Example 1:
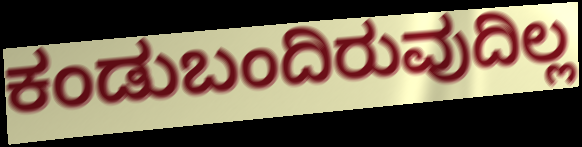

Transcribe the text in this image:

ಕಂಡುಬಂದಿರುವುದಿಲ್ಲ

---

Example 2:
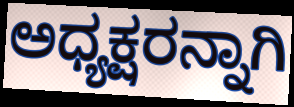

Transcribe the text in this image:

ಅಧ್ಯಕ್ಷರನ್ನಾಗಿ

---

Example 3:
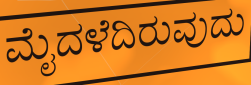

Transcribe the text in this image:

ಮೈದಳೆದಿರುವುದು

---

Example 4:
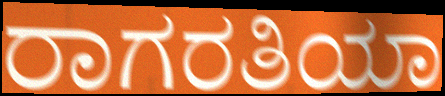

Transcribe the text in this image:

ರಾಗರತಿಯಾ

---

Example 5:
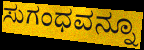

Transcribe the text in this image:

ಸುಗಂಧವನ್ನೂ